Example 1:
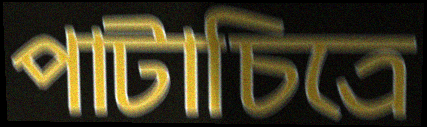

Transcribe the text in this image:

পাটাচিত্রে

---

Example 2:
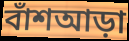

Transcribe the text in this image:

বাঁশআড়া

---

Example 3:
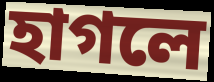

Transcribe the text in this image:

হাগলে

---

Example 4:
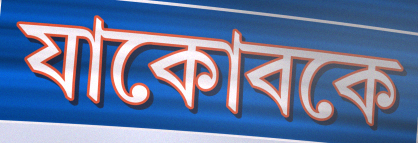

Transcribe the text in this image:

যাকোবকে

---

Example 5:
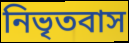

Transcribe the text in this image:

নিভৃতবাস